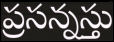
ప్రసన్నస్తు